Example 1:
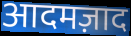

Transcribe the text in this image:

आदमज़ाद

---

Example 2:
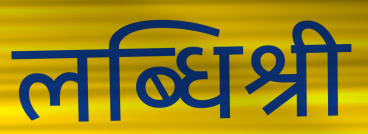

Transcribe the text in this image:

लब्धिश्री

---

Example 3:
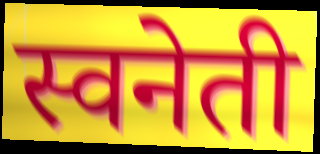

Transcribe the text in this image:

स्वनेती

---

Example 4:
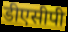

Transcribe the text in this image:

डीएसीपी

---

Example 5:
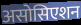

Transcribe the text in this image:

असोसिएशन